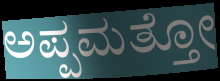
ಅಪ್ಪಮತ್ತೋ